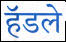
हॅडले